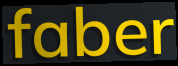
faber